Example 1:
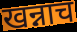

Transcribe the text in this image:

खन्नाच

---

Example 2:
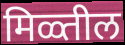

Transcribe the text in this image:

मिळ्तील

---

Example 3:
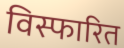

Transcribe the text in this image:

विस्फारित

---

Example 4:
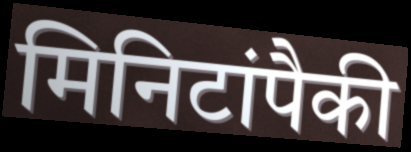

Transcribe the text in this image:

मिनिटांपैकी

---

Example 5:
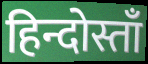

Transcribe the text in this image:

हिन्दोस्ताँ